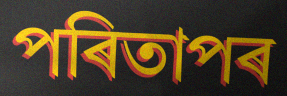
পৰিতাপৰ